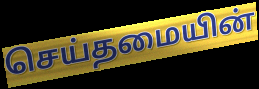
செய்தமையின்